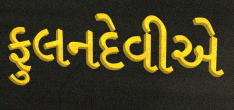
ફુલનદેવીએ